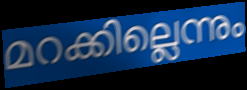
മറക്കില്ലെന്നും